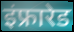
इंफ्रारेड